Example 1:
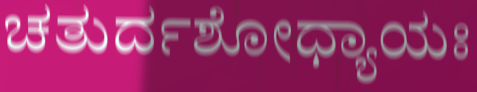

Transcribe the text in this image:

ಚತುರ್ದಶೋಧ್ಯಾಯಃ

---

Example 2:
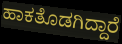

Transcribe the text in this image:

ಹಾಕತೊಡಗಿದ್ದಾರೆ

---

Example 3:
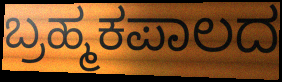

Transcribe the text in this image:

ಬ್ರಹ್ಮಕಪಾಲದ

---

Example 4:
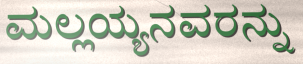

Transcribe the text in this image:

ಮಲ್ಲಯ್ಯನವರನ್ನು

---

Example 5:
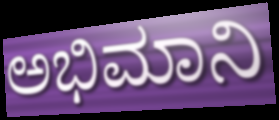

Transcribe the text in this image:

ಅಭಿಮಾನಿ